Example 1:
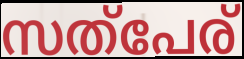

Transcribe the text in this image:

സത്പേര്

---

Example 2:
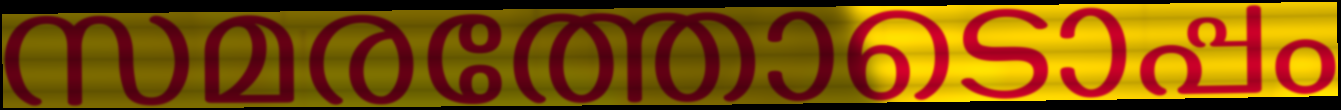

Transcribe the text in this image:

സമരത്തോടൊപ്പം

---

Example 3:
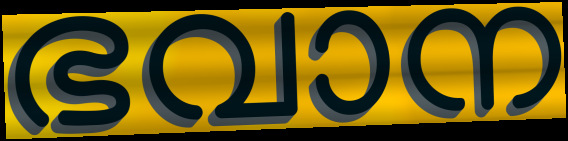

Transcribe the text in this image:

ഭവാന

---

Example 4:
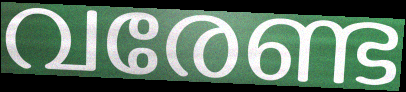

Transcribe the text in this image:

വരേണ്ട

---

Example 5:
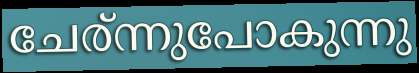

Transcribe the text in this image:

ചേര്ന്നുപോകുന്നു